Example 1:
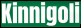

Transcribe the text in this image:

Kinnigoli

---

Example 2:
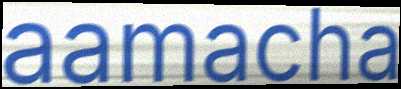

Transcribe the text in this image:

aamacha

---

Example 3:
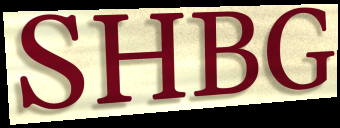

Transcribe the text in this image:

SHBG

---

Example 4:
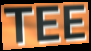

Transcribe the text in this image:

TEE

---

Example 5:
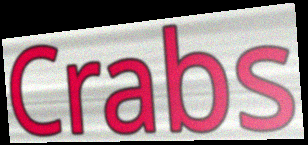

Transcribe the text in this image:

Crabs